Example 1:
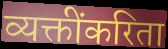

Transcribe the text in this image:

व्यक्तींकरिता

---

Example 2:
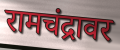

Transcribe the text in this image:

रामचंद्रावर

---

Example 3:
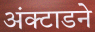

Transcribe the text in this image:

अंक्टाडने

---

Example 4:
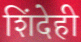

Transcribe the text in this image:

शिंदेही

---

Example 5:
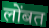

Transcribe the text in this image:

लोंबत